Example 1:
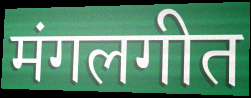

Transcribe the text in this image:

मंगलगीत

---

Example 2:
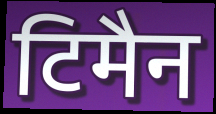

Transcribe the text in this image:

टिमैन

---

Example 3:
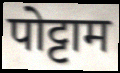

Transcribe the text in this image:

पोट्टाम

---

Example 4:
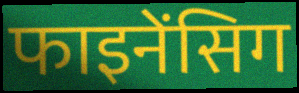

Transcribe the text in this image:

फाइनेंसिग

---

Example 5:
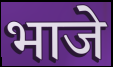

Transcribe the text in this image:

भाजे